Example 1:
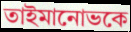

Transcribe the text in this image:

তাইমানোভকে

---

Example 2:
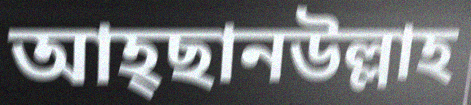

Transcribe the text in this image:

আহ্ছানউল্লাহ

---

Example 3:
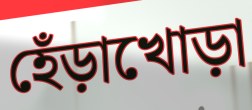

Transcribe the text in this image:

হেঁড়াখোড়া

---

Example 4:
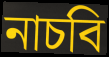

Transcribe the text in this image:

নাচবি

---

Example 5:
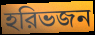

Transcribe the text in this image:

হরিভজন